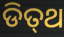
ଡିତ୍‍ଥ